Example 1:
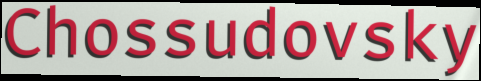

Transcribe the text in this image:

Chossudovsky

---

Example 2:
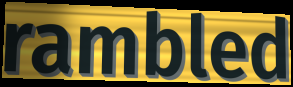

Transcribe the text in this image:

rambled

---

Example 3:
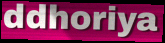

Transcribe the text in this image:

ddhoriya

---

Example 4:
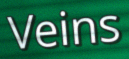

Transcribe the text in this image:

Veins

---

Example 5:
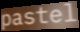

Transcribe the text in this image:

pastel